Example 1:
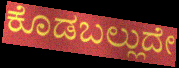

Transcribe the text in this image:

ಕೊಡಬಲ್ಲುದೇ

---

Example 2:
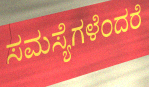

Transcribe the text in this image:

ಸಮಸ್ಯೆಗಳೆಂದರೆ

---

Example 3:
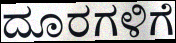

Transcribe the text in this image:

ದೂರಗಳಿಗೆ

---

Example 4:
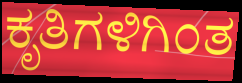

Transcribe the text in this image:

ಕೃತಿಗಳಿಗಿಂತ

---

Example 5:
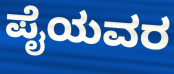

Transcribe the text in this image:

ಪೈಯವರ